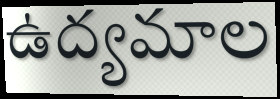
ఉద్యమాల